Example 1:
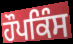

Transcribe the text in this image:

ਹੌਪਕਿੰਸ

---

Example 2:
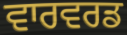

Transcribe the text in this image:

ਵਾਰਵਰਡ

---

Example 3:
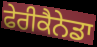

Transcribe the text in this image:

ਫੇਰੀਕੈਨੇਡਾ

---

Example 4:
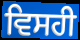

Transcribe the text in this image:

ਵਿਸਹੀ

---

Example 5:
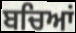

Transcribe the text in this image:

ਬਚਿਆਂ